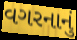
વગરનાનું